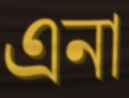
এনা